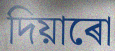
দিয়াৰো